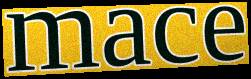
mace